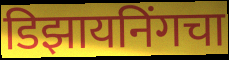
डिझायनिंगचा